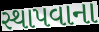
સ્થાપવાના